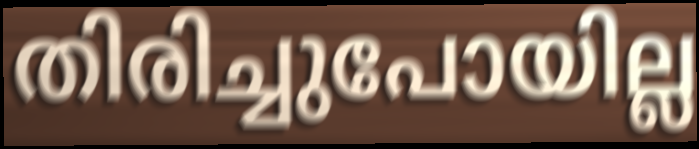
തിരിച്ചുപോയില്ല